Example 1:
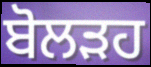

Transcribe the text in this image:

ਬੋਲੜਹ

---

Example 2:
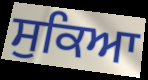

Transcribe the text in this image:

ਸੁਕਿਆ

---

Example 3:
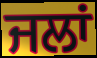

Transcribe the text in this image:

ਜਲਾਂ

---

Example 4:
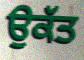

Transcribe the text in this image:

ਉਕੱਤ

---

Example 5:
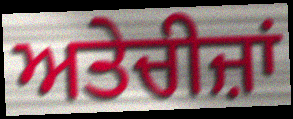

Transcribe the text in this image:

ਅਤੇਚੀਜ਼ਾਂ